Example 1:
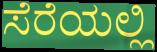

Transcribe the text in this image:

ಸೆರೆಯಲ್ಲಿ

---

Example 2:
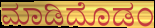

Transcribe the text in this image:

ಮಾಡಿದೊಡಂ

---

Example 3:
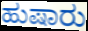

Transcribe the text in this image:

ಹುಷಾರು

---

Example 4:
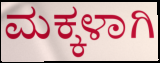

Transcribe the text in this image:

ಮಕ್ಕಳಾಗಿ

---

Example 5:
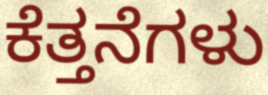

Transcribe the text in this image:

ಕೆತ್ತನೆಗಳು